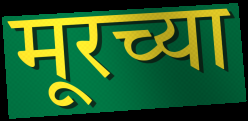
मूरच्या